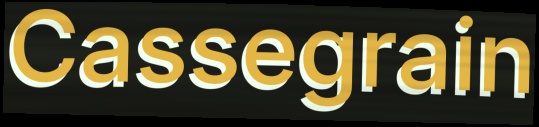
Cassegrain